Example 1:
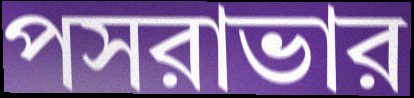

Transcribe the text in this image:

পসরাভার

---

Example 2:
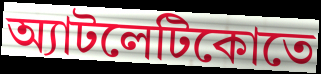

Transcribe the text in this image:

অ্যাটলেটিকোতে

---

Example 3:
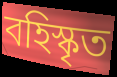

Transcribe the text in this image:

বহিস্কৃত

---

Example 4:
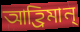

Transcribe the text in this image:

আহ্রিমান্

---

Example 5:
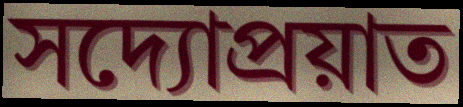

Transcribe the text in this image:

সদ্যোপ্রয়াত